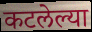
कटलेल्या